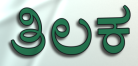
ತಿಲಕ